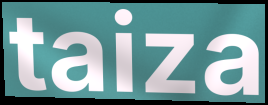
taiza